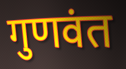
गुणवंत